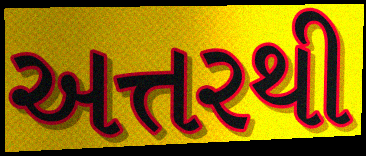
અત્તરથી